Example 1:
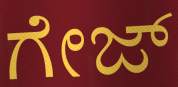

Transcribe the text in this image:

ಗೇಜ್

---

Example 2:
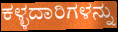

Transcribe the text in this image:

ಕಳ್ಳದಾರಿಗಳನ್ನು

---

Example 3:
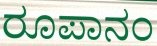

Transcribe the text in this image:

ರೂಪಾನಂ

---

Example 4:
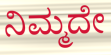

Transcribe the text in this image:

ನಿಮ್ಮದೇ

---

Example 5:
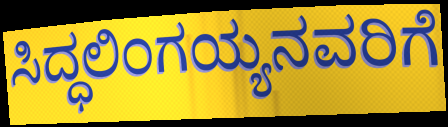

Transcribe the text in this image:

ಸಿದ್ಧಲಿಂಗಯ್ಯನವರಿಗೆ